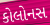
કોલોનસ